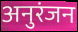
अनुरंजन